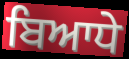
ਬਿਆਧੇ